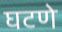
घटणे